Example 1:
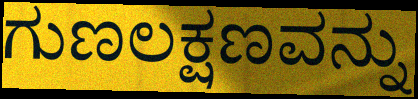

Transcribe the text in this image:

ಗುಣಲಕ್ಷಣವನ್ನು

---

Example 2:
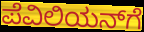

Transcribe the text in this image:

ಪೆವಿಲಿಯನ್‌ಗೆ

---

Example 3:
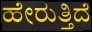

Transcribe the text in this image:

ಹೇರುತ್ತಿದೆ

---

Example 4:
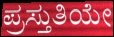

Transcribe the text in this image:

ಪ್ರಸ್ತುತಿಯೇ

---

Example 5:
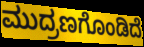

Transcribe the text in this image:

ಮುದ್ರಣಗೊಂಡಿದೆ